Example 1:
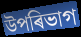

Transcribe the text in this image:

উপৰিভাগ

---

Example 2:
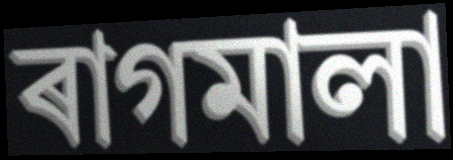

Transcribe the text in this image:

ৰাগমালা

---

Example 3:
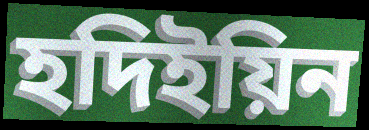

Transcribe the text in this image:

হদিইয়িন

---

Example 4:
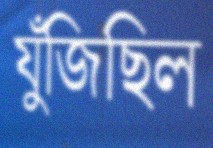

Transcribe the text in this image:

যুঁজিছিল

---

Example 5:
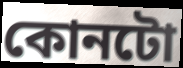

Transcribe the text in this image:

কোনটো